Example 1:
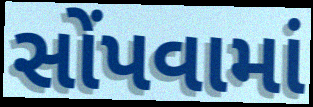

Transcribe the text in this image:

સોંપવામાં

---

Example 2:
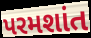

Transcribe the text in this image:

પરમશાંત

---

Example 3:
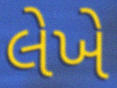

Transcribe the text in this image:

લેખે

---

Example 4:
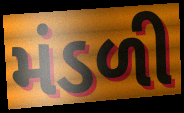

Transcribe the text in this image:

મંડળી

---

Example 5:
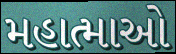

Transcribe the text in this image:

મહાત્માઓ